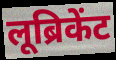
लूब्रिकेंट